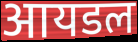
आयडल